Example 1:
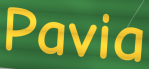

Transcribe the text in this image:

Pavia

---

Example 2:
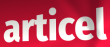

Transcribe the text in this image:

articel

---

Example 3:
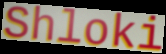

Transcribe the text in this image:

Shloki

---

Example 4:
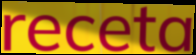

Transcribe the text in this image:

receta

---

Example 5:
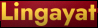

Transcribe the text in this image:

Lingayat